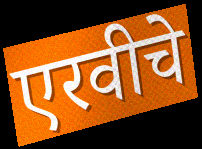
एरवीचे